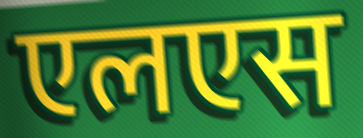
एलएस